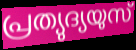
പ്രത്യുദ്യയുസ്